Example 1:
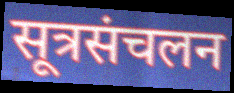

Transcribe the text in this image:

सूत्रसंचलन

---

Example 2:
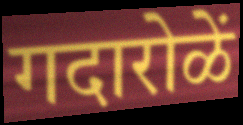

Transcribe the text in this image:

गदारोळें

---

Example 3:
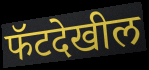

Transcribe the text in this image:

फॅटदेखील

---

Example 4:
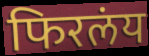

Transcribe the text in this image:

फिरलंय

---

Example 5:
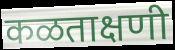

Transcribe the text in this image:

कळताक्षणी